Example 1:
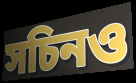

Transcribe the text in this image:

সচিনও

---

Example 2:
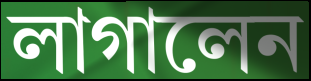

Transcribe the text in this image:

লাগালেন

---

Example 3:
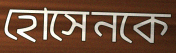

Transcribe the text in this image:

হোসেনকে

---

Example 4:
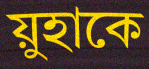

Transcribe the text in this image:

য়ুহাকে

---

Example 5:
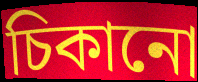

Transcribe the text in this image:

চিকানো